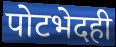
पोटभेदही